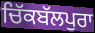
ਚਿੱਕਬੱਲਪੁਰਾ